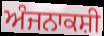
ਅੰਜਨਾਕਸ਼ੀ